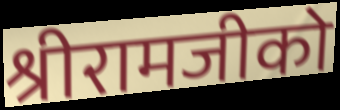
श्रीरामजीको